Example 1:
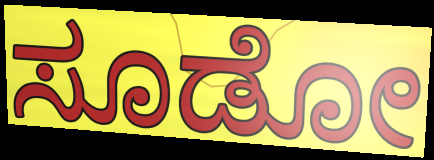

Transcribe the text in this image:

ಸೂಡೋ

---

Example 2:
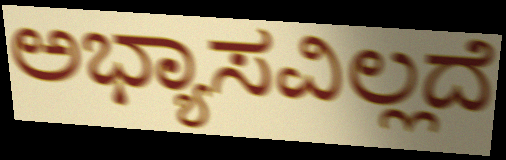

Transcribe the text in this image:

ಅಭ್ಯಾಸವಿಲ್ಲದೆ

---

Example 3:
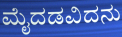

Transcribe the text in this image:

ಮೈದಡವಿದನು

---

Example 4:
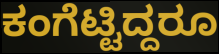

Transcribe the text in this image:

ಕಂಗೆಟ್ಟಿದ್ದರೂ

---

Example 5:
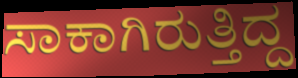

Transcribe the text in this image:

ಸಾಕಾಗಿರುತ್ತಿದ್ದ